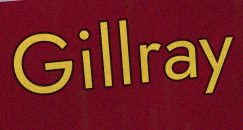
Gillray